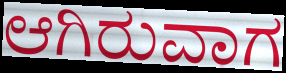
ಆಗಿರುವಾಗ